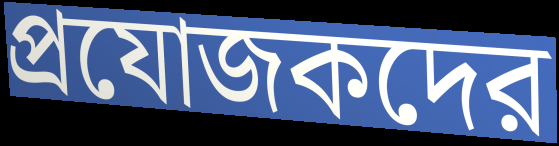
প্রযোজকদের